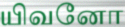
யிவனோ